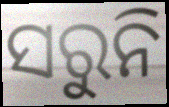
ସରୁନି